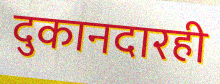
दुकानदारही